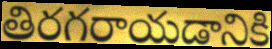
తిరగరాయడానికి